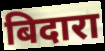
बिदारा